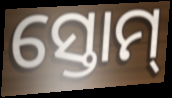
ସ୍ତୋମ୍